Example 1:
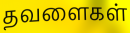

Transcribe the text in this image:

தவளைகள்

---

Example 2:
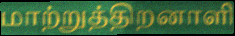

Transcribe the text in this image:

மாற்றுத்திறனாளி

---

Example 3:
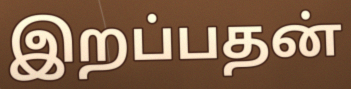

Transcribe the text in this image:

இறப்பதன்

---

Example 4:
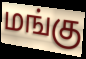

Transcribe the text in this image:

மங்கு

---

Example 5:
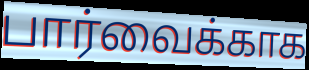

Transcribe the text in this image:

பார்வைக்காக